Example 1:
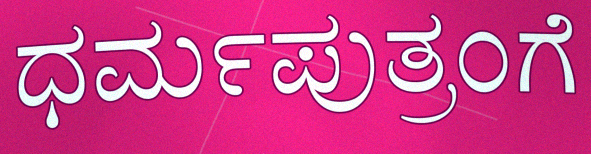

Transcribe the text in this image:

ಧರ್ಮಪುತ್ರಂಗೆ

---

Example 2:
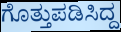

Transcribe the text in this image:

ಗೊತ್ತುಪಡಿಸಿದ್ದ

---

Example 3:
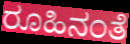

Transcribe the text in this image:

ರೂಹಿನಂತೆ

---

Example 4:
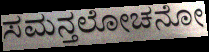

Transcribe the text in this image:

ಸಮನ್ತಲೋಚನೋ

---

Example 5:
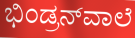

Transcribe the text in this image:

ಭಿಂಡ್ರನ್‌ವಾಲೆ